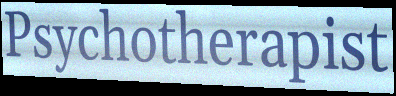
Psychotherapist